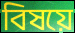
বিষয়ে